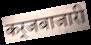
कर्जबाजारी